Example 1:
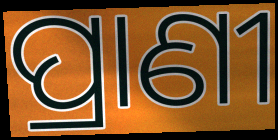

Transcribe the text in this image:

ପ୍ରାଣୀ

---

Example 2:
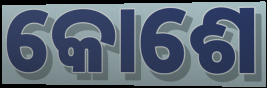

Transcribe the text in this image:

କୋଶେ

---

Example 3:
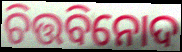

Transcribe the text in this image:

ଚିତ୍ତବିନୋଦ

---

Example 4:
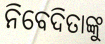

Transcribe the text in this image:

ନିବେଦିତାଙ୍କୁ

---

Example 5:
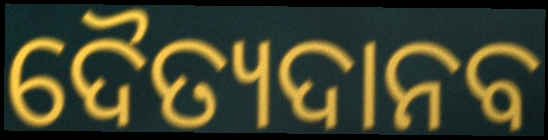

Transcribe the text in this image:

ଦୈତ୍ୟଦାନବ